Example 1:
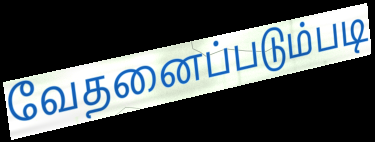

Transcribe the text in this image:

வேதனைப்படும்படி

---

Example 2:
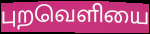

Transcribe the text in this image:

புறவெளியை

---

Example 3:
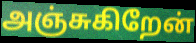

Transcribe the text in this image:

அஞ்சுகிறேன்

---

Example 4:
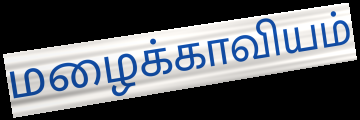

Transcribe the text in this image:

மழைக்காவியம்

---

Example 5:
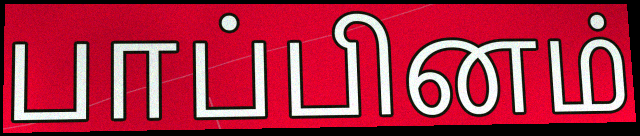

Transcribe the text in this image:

பாப்பினம்